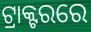
ଟ୍ରାକ୍ଟରରେ